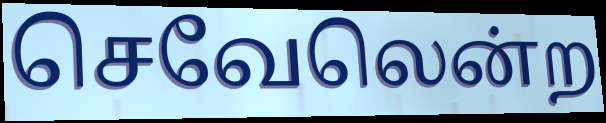
செவேலென்ற